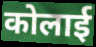
कोलाई